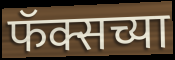
फॅक्सच्या